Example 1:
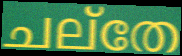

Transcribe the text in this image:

ചല്തേ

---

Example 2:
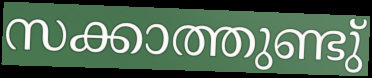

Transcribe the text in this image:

സക്കാത്തുണ്ടു്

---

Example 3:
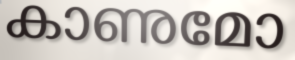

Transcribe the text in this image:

കാണുമോ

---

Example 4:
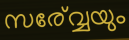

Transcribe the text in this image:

സര്വ്വേയും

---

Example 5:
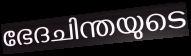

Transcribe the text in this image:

ഭേദചിന്തയുടെ